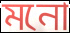
মনো